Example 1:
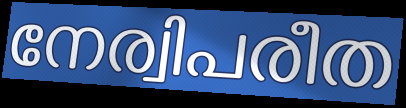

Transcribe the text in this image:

നേര്വിപരീത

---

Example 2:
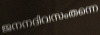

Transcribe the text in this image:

ജനനദിവസംതന്നെ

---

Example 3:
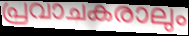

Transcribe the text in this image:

പ്രവാചകരാലും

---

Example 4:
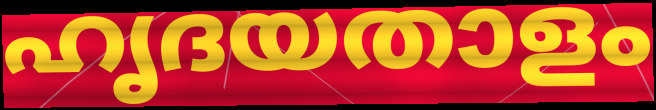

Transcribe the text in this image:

ഹൃദയതാളം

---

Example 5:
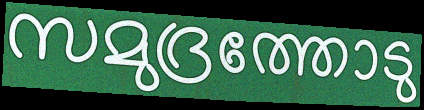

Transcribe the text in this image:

സമുദ്രത്തോടു